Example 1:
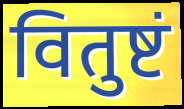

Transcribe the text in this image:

वितुष्टं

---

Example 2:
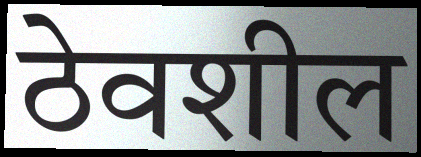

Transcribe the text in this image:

ठेवशील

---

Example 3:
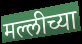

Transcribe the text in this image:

मल्लीच्या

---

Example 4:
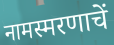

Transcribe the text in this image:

नामस्मरणाचें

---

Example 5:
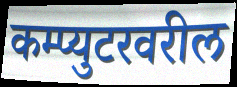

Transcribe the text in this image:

कम्प्युटरवरील